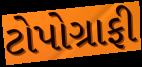
ટોપોગ્રાફી